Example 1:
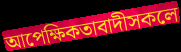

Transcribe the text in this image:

আপেক্ষিকতাবাদীসকলে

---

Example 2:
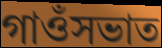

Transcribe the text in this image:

গাওঁসভাত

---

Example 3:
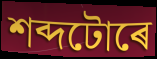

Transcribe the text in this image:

শব্দটোৰে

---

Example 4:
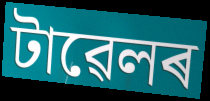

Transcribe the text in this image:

টাৱেলৰ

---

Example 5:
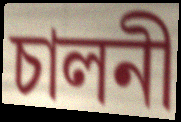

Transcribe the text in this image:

চালনী